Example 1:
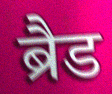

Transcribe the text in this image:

ब्रैड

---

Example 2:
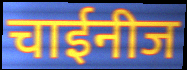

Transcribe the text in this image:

चाईनीज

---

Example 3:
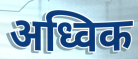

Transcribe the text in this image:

अध्विक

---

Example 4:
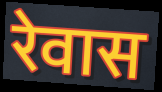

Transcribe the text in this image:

रेवास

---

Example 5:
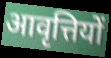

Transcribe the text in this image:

आवृत्तियों